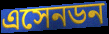
এসেনডন